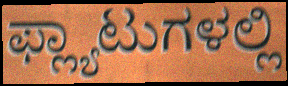
ಫ್ಲ್ಯಾಟುಗಳಲ್ಲಿ